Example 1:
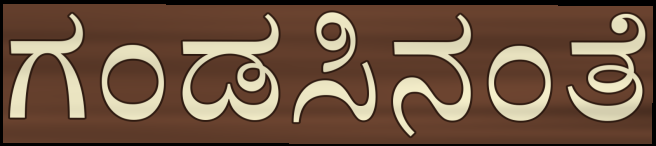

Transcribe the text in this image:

ಗಂಡಸಿನಂತೆ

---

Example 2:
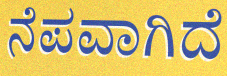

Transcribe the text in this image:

ನೆಪವಾಗಿದೆ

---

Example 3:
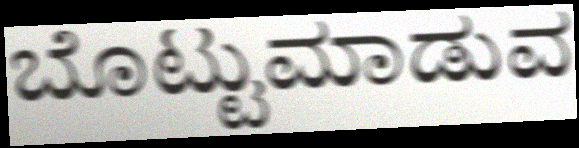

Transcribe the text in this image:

ಬೊಟ್ಟುಮಾಡುವ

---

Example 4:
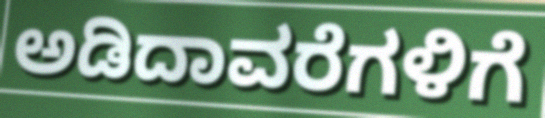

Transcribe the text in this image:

ಅಡಿದಾವರೆಗಳಿಗೆ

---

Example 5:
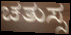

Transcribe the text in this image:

ಚತುಸ್ಸ